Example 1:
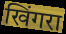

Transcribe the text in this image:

खिंगरा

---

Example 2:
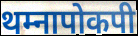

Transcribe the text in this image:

थम्नापोकपी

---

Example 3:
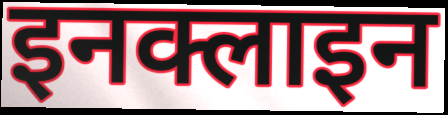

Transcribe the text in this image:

इनक्लाइन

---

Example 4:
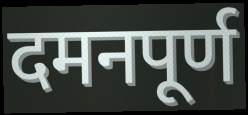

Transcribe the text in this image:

दमनपूर्ण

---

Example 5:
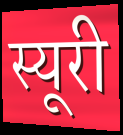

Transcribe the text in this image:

स्यूरी